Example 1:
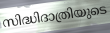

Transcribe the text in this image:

സിദ്ധിദാത്രിയുടെ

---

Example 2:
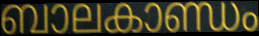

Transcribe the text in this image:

ബാലകാണ്ഡം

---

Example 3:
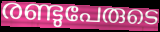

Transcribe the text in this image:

രണ്ടുപേരുടെ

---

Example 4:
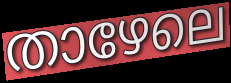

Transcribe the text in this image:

താഴേലെ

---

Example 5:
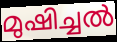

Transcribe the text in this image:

മുഷിച്ചൽ